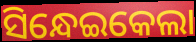
ସିନ୍ଧେଇକେଲା